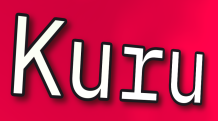
Kuru